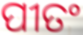
ପୀତଂ